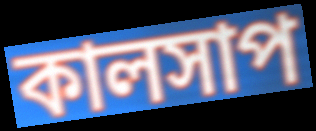
কালসাপ